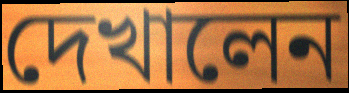
দেখালেন